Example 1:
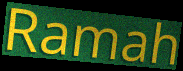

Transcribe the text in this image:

Ramah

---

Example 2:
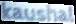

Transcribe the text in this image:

kaushal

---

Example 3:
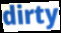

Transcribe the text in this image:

dirty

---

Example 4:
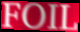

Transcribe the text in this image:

FOIL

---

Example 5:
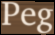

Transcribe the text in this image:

Peg